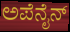
ಅಪೆನೈನ್